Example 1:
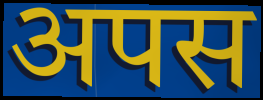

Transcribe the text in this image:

अपस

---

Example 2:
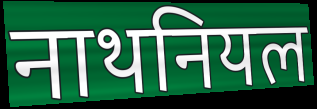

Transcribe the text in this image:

नाथनियल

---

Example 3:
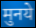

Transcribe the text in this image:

मुनये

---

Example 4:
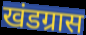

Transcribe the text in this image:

खंडग्रास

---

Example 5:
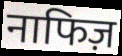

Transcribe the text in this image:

नाफिज़